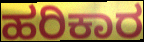
ಹರಿಕಾರ